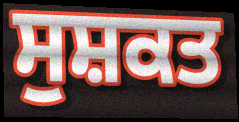
ਸੁਸ਼ਕਤ